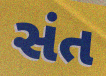
સંત